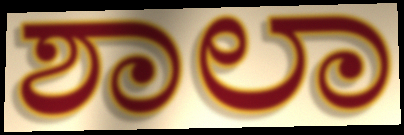
ಶಾಲಾ